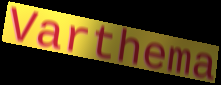
Varthema